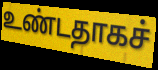
உண்டதாகச்